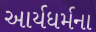
આર્યધર્મના